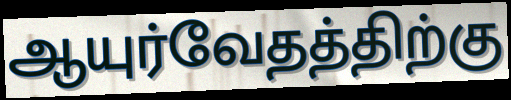
ஆயுர்வேதத்திற்கு